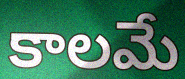
కాలమే